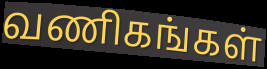
வணிகங்கள்